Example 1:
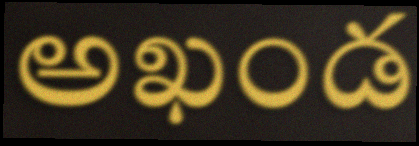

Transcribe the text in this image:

అఖండ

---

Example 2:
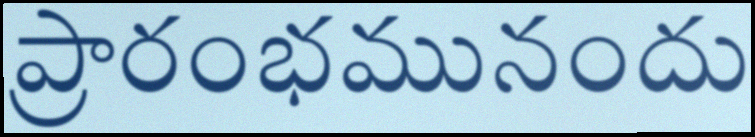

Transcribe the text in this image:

ప్రారంభమునందు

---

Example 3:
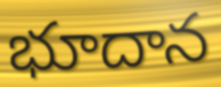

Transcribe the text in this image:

భూదాన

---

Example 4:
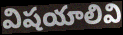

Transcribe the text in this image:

విషయాలివి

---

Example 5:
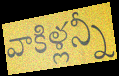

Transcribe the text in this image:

వాకిళ్లన్నీ